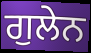
ਗੁਲੇਨ